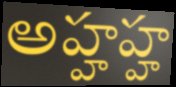
అహ్హహ్హ